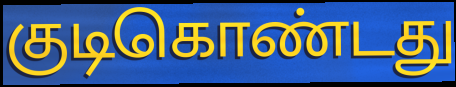
குடிகொண்டது